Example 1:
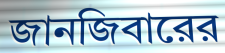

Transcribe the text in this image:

জানজিবারের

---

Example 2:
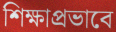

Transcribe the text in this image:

শিক্ষাপ্রভাবে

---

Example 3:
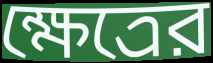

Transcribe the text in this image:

ক্ষেত্রের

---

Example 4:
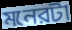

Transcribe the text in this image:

মনেরটা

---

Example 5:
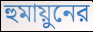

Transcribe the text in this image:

হুমায়ুনের